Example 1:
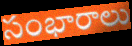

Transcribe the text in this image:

సంభారాలు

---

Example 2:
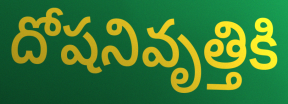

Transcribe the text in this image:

దోషనివృత్తికి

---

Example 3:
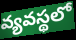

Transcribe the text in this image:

వ్యవస్థలో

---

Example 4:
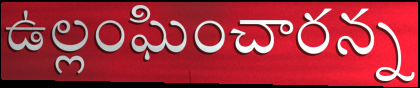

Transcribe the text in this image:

ఉల్లంఘించారన్న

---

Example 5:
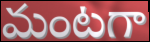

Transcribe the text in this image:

మంటగా